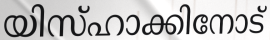
യിസ്ഹാക്കിനോട്